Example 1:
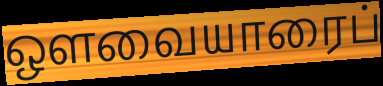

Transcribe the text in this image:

ஔவையாரைப்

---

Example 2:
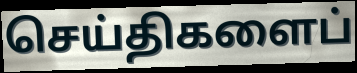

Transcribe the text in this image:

செய்திகளைப்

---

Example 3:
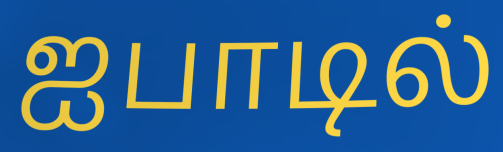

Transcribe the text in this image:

ஐபாடில்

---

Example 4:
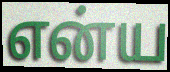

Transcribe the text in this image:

என்ய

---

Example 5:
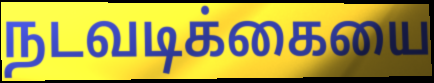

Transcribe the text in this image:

நடவடிக்கையை